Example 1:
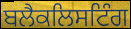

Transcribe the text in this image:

ਬਲੈਕਲਿਸਟਿੰਗ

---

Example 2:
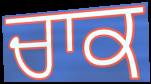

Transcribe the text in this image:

ਚਾਕ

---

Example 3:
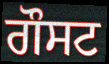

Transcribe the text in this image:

ਗੌਸਟ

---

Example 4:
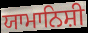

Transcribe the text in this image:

ਯਾਮਾਨਿਸ਼ੀ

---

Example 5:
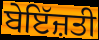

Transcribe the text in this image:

ਬੇਇੱਜ਼ਤੀ